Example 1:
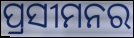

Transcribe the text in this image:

ପ୍ରସୀମନର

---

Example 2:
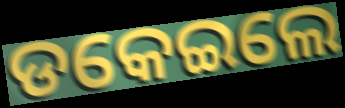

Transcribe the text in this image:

ଡକେଇଲେ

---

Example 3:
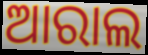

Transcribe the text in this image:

ଆରାଲ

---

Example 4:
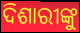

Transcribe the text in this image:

ଦିଶାରୀଙ୍କୁ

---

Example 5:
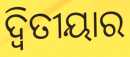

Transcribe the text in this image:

ଦ୍ଵିତୀୟାର